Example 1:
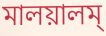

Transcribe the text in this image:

মালয়ালম্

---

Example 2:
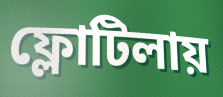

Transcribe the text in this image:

ফ্লোটিলায়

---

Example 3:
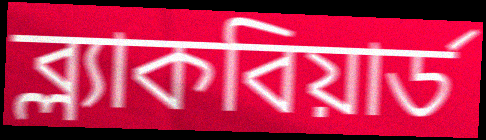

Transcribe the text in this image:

ব্ল্যাকবিয়ার্ড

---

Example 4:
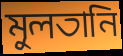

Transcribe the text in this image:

মুলতানি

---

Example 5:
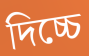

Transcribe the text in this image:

দিচ্চে